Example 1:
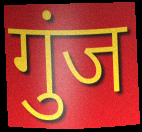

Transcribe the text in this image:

गुंज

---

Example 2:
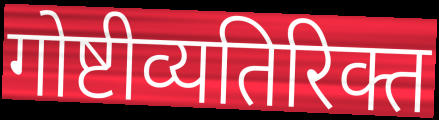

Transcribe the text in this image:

गोष्टीव्यतिरिक्त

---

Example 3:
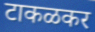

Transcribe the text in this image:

टाकळकर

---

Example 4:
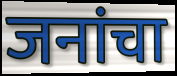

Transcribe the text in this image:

जनांचा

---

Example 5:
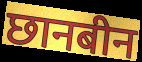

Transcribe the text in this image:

छानबीन